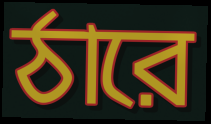
ঠারে